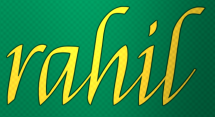
rahil